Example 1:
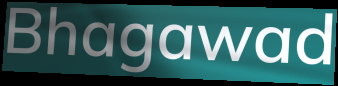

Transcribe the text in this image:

Bhagawad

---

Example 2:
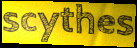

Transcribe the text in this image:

scythes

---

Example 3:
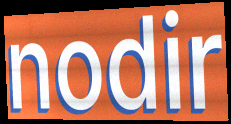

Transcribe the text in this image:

nodir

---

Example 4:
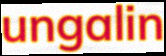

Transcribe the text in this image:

ungalin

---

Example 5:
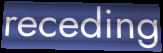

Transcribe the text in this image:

receding